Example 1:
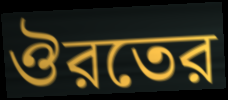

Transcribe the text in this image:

ঔরতের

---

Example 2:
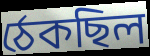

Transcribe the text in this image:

ঠেকছিল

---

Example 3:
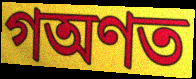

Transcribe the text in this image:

গঅণত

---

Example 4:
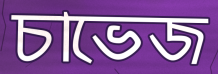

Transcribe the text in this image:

চাভেজ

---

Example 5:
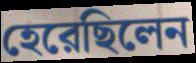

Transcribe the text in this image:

হেরেছিলেন